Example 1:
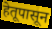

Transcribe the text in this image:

हेतूपासून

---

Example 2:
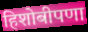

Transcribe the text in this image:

हिशोबीपणा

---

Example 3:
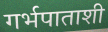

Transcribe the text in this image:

गर्भपाताशी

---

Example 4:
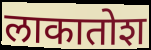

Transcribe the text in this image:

लाकातोश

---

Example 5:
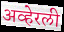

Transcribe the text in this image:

अव्हेरली